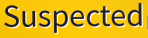
Suspected